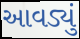
આવડ્યું